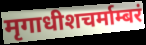
मृगाधीशचर्माम्बरं